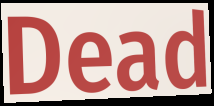
Dead